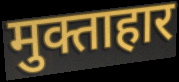
मुक्ताहार